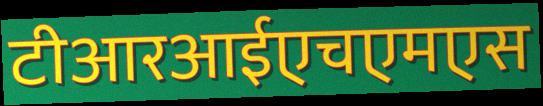
टीआरआईएचएमएस